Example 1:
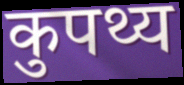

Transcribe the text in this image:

कुपथ्य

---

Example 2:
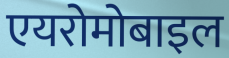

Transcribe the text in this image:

एयरोमोबाइल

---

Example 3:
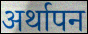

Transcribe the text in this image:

अर्थापन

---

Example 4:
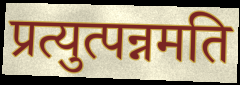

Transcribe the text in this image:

प्रत्युत्पन्नमति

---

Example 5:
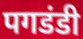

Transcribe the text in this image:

पगडंडी